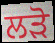
ਲੜੋ